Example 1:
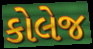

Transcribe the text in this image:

કોલેજ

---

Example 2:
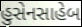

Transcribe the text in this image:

હુસેનસાહેબ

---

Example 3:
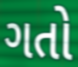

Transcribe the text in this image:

ગતો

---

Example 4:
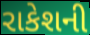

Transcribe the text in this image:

રાકેશની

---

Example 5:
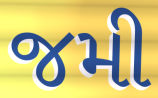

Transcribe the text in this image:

જમી